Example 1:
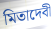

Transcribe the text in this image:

মিতাদেবী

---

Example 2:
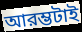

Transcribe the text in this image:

আরম্ভটাই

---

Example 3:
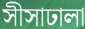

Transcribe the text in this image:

সীসাঢালা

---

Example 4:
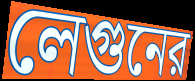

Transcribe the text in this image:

লেগুনের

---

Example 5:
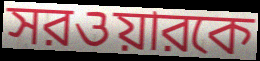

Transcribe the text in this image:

সরওয়ারকে